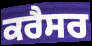
ਕਰੈਸਰ